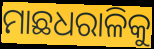
ମାଛଧରାଳିକୁ